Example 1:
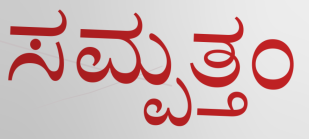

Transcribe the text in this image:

ಸಮ್ಪತ್ತಂ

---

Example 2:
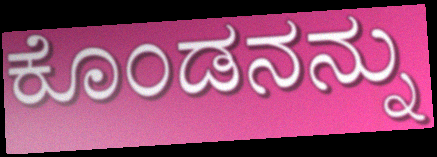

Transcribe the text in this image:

ಕೊಂಡನನ್ನು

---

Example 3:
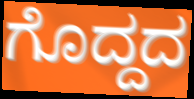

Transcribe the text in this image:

ಗೊದ್ದದ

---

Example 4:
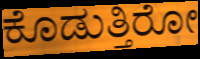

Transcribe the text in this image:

ಕೊಡುತ್ತಿರೋ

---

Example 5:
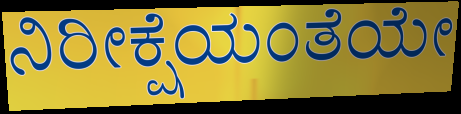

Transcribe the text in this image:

ನಿರೀಕ್ಷೆಯಂತೆಯೇ